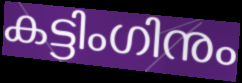
കട്ടിംഗിനും